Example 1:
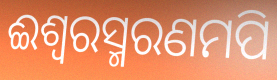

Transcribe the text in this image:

ଈଶ୍ଵରସ୍ମରଣମପି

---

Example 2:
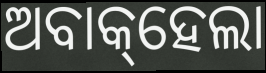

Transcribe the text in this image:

ଅବାକ୍‌ହେଲା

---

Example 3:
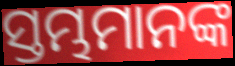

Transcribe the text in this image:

ସ୍ତମ୍ଭମାନଙ୍କ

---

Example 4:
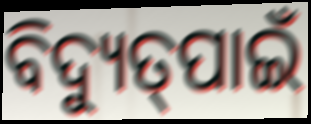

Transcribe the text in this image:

ବିଦ୍ୟୁତ୍‌ପାଇଁ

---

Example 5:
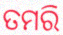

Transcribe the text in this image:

ତମରି